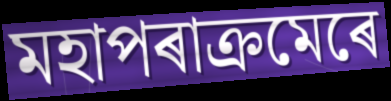
মহাপৰাক্ৰমেৰে